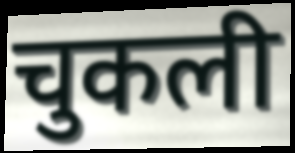
चुकली